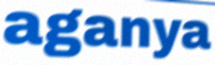
aganya